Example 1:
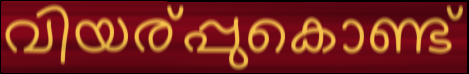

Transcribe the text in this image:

വിയര്പ്പുകൊണ്ട്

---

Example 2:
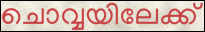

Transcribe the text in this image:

ചൊവ്വയിലേക്ക്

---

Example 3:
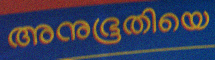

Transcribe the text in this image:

അനുഭൂതിയെ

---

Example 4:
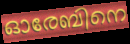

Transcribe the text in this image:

ഓരേബിനെ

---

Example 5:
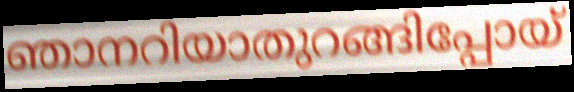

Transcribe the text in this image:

ഞാനറിയാതുറങ്ങിപ്പോയ്